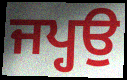
ਜਪ੍ਹਉ